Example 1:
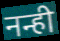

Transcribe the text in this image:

नन्ही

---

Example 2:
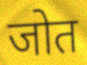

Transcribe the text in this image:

जोत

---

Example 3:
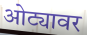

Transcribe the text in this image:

ओट्यावर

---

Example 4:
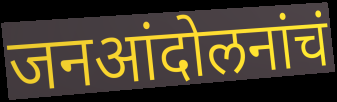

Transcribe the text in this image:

जनआंदोलनांचं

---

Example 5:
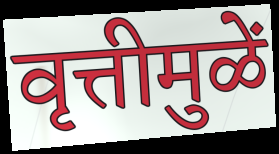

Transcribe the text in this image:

वृत्तीमुळें